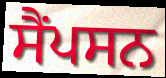
ਸੈਂਪਸਨ